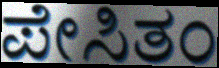
ಪೇಸಿತಂ